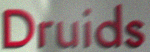
Druids